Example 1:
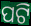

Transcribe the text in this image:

ପଟି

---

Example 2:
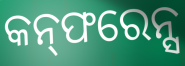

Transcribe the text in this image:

କନ୍‌ଫରେନ୍ସ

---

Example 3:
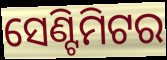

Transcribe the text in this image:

ସେଣ୍ଟିମିଟର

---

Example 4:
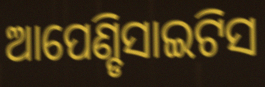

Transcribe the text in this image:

ଆପେଣ୍ଡିସାଇଟିସ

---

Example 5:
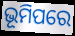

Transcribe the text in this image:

ଭୂମିପରେ